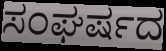
ಸಂಘರ್ಷದ